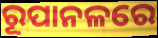
ରୂପାନଳରେ